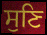
ਸੁਣਿ